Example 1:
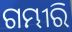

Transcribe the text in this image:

ଗମ୍ଭୀରି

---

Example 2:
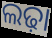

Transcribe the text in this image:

ଲଢ଼ା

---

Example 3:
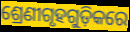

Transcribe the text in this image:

ଶ୍ରେଣୀଗୃହଗୁଡ଼ିକରେ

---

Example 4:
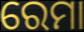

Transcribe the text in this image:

ରେମା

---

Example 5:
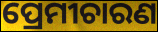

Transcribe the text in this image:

ପ୍ରେମୀଚାରଣ